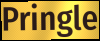
Pringle